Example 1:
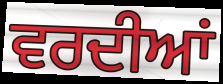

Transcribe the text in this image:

ਵਰਦੀਆਂ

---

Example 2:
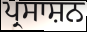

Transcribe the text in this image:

ਪ੍ਰਸਾਸ਼ਨ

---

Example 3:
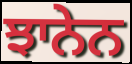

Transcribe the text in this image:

ਝਾਨੇਨ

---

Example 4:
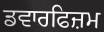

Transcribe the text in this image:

ਡਵਾਰਫਿਜ਼ਮ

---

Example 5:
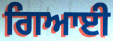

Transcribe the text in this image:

ਗਿਆਈ